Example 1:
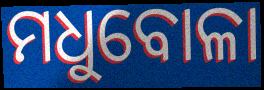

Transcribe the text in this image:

ମଧୁବୋଳା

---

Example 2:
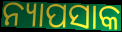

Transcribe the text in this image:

ନ୍ୟାପସାକ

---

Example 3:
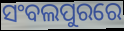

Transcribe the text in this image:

ସଂବଲପୁରରେ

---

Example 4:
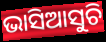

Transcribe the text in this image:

ଭାସିଆସୁଚି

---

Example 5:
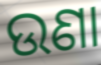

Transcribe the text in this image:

ଉଣା